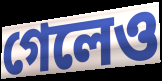
গেলেও